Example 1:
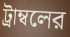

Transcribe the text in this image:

ট্রাম্বলের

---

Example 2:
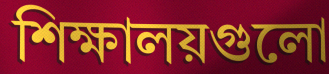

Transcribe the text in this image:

শিক্ষালয়গুলো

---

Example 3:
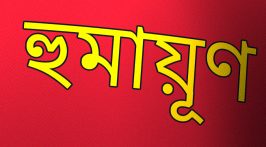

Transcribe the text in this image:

হুমায়ূণ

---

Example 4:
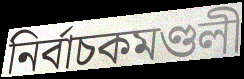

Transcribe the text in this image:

নির্বাচকমণ্ডলী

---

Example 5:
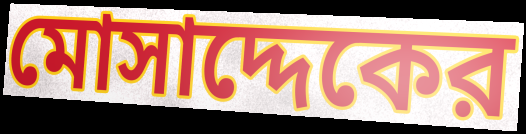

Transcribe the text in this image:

মোসাদ্দেকের